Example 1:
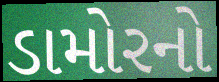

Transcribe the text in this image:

ડામોરનો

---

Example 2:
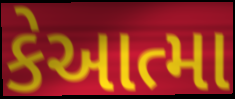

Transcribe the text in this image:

કેઆત્મા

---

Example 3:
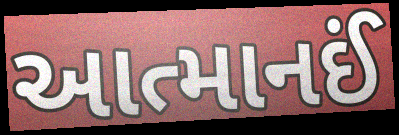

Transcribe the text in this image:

આત્માનઈં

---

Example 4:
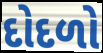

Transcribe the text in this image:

દોદળો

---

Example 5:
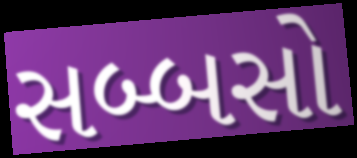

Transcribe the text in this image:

સબ્બસો